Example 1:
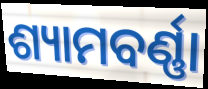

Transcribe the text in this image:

ଶ୍ୟାମବର୍ଣ୍ଣା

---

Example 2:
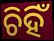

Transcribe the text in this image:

ଚିହିଁ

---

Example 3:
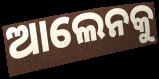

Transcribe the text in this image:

ଆଲେନକୁ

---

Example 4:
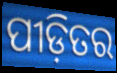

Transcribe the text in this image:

ପୀଡ଼ିତର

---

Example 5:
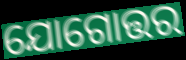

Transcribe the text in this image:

ଯୋଗୋତ୍ତର